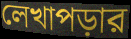
লেখাপড়ার